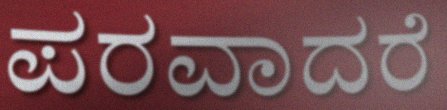
ಪರವಾದರೆ